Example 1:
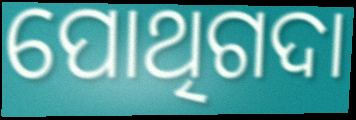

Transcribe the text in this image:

ପୋଥିଗଦା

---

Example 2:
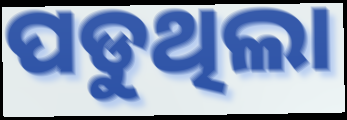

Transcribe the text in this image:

ପଡୁଥିଲା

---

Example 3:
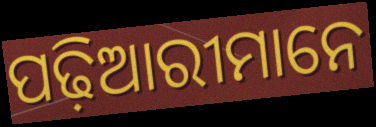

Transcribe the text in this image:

ପଢ଼ିଆରୀମାନେ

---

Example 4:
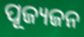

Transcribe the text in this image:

ପୂଜ୍ୟଜନ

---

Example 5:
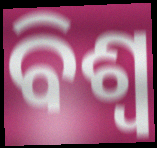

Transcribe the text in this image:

ବିଶ୍ୱ